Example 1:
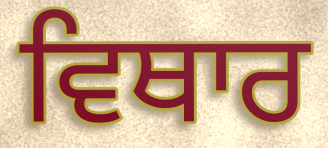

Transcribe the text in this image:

ਵਿਥਾਰ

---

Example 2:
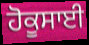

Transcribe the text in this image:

ਹੋਕੂਸਾਈ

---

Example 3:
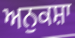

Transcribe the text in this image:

ਅਨੁਕਸ਼ਾ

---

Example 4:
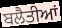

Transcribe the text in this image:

ਬਲੈਤੀਆਂ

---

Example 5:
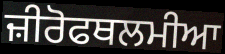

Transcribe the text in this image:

ਜ਼ੀਰੋਫਥਲਮੀਆ